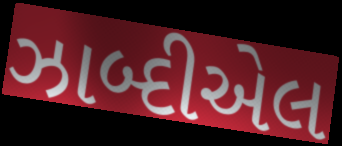
ઝાબ્દીએલ